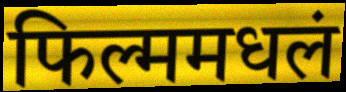
फिल्ममधलं